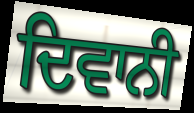
ਦਿਵਾਨੀ